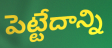
పెట్టేదాన్ని